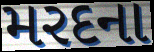
મરદના